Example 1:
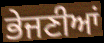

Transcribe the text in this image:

ਭੇਜਣੀਆਂ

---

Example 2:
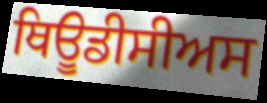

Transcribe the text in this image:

ਥਿਊਡੀਸੀਅਸ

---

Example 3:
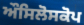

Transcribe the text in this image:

ਔਸਿਲੋਸਕੋਪ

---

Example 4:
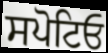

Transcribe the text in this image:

ਸਪੋਟਿਓ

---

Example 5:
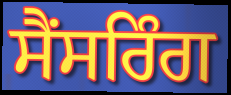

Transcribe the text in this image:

ਸੈਂਸਰਿੰਗ